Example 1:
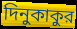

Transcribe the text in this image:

দিনুকাকুর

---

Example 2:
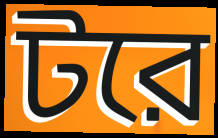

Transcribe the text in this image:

টরে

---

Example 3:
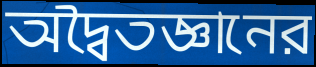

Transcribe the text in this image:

অদ্বৈতজ্ঞানের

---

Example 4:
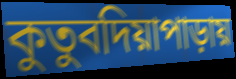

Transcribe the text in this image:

কুতুবদিয়াপাড়ায়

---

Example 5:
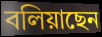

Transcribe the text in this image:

বলিয়াছেন